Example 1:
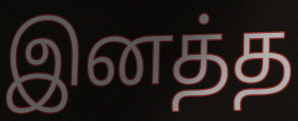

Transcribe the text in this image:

இனத்த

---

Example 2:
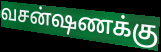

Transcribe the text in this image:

வசன்ஷணக்கு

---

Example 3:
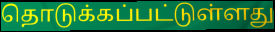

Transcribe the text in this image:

தொடுக்கப்பட்டுள்ளது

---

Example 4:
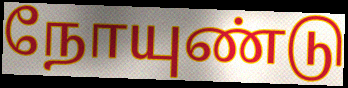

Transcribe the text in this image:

நோயுண்டு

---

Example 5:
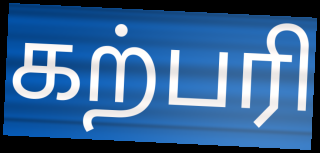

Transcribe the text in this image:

கற்பரி